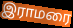
இராமரை